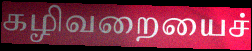
கழிவறையைச்